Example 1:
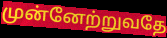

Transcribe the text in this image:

முன்னேற்றுவதே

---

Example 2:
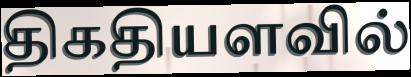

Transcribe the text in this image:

திகதியளவில்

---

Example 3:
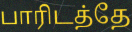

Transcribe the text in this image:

பாரிடத்தே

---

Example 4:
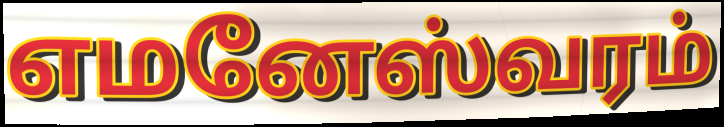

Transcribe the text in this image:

எமனேஸ்வரம்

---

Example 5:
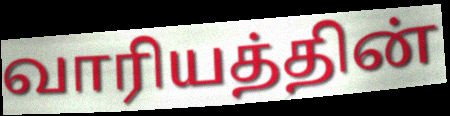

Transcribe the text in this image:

வாரியத்தின்